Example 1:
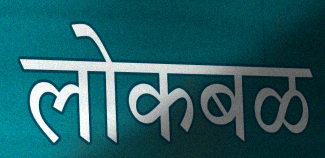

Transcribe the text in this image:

लोकबळ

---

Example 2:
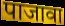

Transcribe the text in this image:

पाजावा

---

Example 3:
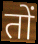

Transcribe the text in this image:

तों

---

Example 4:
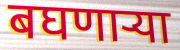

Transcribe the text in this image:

बघणाऱ्या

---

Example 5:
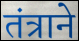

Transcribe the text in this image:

तंत्राने